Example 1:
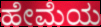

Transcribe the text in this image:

ಹೇಮೆಯ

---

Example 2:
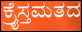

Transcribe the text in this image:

ಕ್ರೈಸ್ತಮತದ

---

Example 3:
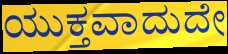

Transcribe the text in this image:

ಯುಕ್ತವಾದುದೇ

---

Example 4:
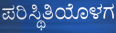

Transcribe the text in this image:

ಪರಿಸ್ಥಿತಿಯೊಳಗ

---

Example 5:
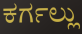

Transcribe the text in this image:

ಕರ್ಗಲ್ಲು